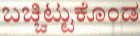
ಬಚ್ಚಿಟ್ಟುಕೊಂಡ